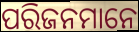
ପରିଜନମାନେ